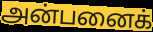
அன்பனைக்